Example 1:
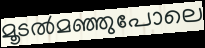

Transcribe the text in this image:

മൂടൽമഞ്ഞുപോലെ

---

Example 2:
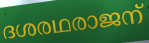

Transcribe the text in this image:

ദശരഥരാജന്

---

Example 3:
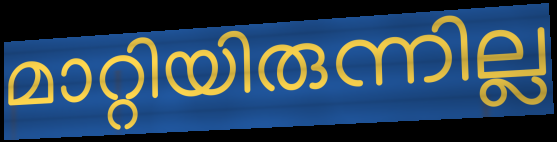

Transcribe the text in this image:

മാറ്റിയിരുന്നില്ല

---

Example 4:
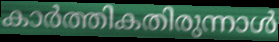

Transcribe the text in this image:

കാർത്തികതിരുന്നാൾ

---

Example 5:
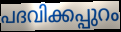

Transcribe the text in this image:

പദവിക്കപ്പുറം